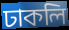
ঢাকলি